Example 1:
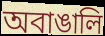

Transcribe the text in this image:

অবাঙালি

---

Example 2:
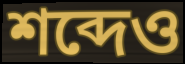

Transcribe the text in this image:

শব্দেও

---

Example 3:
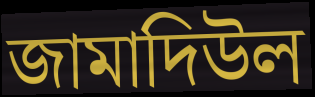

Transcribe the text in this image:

জামাদিউল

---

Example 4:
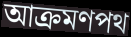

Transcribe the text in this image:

আক্রমণপথ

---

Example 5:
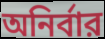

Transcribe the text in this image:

অনির্বার